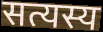
सत्यस्य